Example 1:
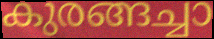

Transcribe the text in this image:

കുരങ്ങച്ചാ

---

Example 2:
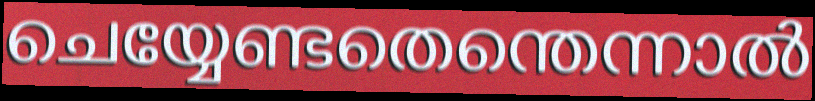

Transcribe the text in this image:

ചെയ്യേണ്ടതെന്തെന്നാൽ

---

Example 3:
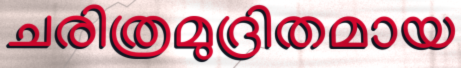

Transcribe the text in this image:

ചരിത്രമുദ്രിതമായ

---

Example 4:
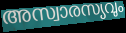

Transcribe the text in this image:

അസ്വാരസ്യവും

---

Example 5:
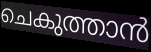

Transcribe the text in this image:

ചെകുത്താൻ